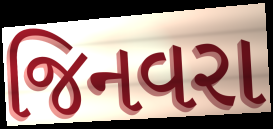
જિનવરા